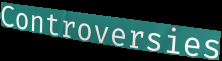
Controversies